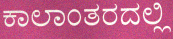
ಕಾಲಾಂತರದಲ್ಲಿ